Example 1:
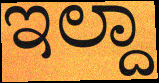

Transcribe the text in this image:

ಇಲ್ದಾ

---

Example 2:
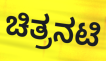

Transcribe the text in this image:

ಚಿತ್ರನಟಿ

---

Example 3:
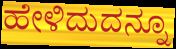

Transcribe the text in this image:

ಹೇಳಿದುದನ್ನೂ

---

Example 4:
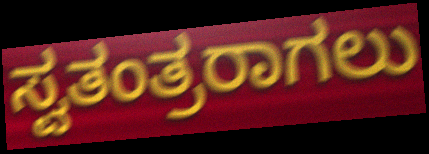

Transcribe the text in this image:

ಸ್ವತಂತ್ರರಾಗಲು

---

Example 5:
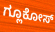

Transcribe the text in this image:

ಗ್ಲೂಕೋಸ್